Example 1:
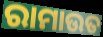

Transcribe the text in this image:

ରାମାଉତ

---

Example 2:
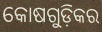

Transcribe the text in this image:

କୋଷଗୁଡ଼ିକର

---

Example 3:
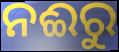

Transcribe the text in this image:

ନଈରୁ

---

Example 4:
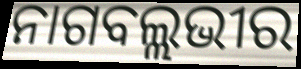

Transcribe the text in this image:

ନାଗବଲ୍ଲଭୀର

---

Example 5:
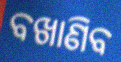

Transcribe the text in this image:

ବଖାଣିବ